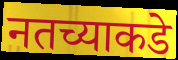
नतच्याकडे